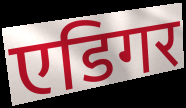
एडिगर